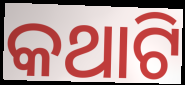
କଥାଟି